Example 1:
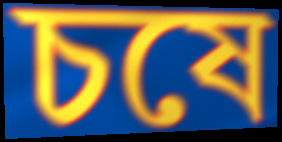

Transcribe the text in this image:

চষে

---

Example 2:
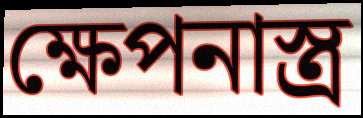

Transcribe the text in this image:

ক্ষেপনাস্ত্র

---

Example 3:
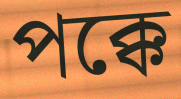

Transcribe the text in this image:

পক্কে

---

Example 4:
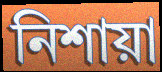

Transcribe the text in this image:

নিশায়া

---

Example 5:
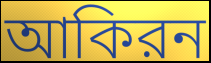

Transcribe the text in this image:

আকিরন